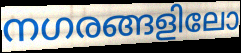
നഗരങ്ങളിലോ